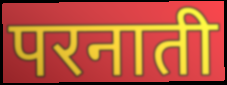
परनाती